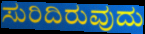
ಸುರಿದಿರುವುದು